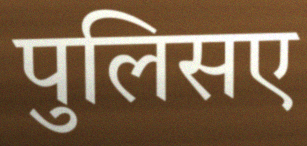
पुलिसए